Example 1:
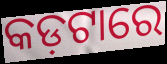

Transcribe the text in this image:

କଡ଼ଟାରେ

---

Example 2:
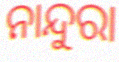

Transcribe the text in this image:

ନାନ୍ଦୁରା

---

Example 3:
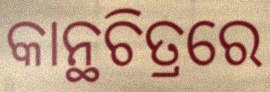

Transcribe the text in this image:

କାନ୍ଥଚିତ୍ରରେ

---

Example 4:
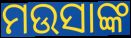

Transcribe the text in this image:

ମଉସାଙ୍କ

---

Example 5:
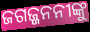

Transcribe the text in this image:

ଜଗଜ୍ଜନନୀଙ୍କୁ